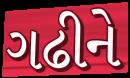
ગઢીને